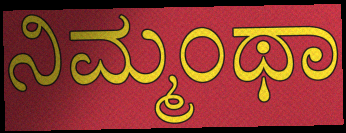
ನಿಮ್ಮಂಥಾ